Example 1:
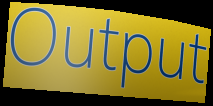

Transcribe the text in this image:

Output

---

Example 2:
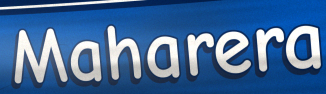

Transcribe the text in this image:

Maharera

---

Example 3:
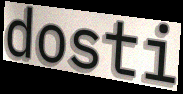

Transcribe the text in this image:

dosti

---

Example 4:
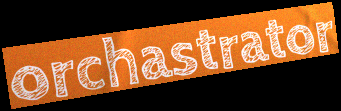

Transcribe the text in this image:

orchastrator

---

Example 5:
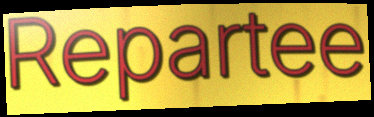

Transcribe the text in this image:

Repartee